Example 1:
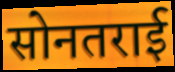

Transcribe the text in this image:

सोनतराई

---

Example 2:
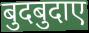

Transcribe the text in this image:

बुदबुदाए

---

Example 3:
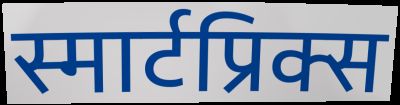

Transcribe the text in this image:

स्मार्टप्रिक्स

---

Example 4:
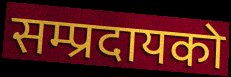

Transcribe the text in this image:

सम्प्रदायको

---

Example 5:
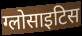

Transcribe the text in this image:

ग्लोसाइटिस